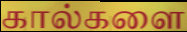
கால்களை